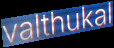
valthukal